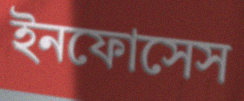
ইনফোসেস